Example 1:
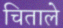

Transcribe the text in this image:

चिताले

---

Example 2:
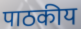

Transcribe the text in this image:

पाठकीय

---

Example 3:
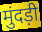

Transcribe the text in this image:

मुंदड़ी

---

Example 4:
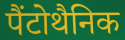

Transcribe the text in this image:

पैंटोथैनिक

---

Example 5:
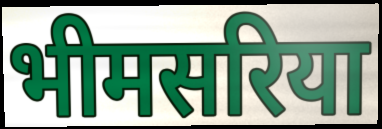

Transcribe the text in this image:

भीमसरिया